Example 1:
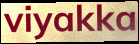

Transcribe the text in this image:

viyakka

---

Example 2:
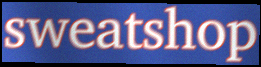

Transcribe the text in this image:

sweatshop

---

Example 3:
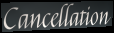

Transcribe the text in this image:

Cancellation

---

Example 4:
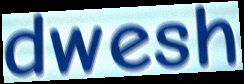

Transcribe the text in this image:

dwesh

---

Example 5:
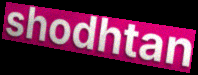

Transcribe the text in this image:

shodhtan